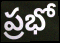
ప్రభో